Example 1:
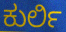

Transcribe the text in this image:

ಕುರ್ಲಿ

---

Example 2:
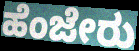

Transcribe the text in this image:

ಹೆಂಜೇರು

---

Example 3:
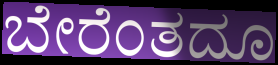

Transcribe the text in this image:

ಬೇರೆಂತದೂ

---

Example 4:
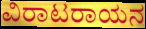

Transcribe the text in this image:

ವಿರಾಟರಾಯನ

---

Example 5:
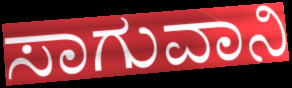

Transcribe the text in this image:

ಸಾಗುವಾನಿ